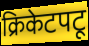
क्रिकेटपटू